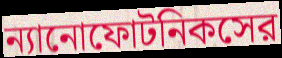
ন্যানোফোটনিকসের